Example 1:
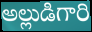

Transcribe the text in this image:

అల్లుడిగారి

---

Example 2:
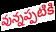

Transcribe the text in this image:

వున్నప్పటికి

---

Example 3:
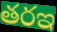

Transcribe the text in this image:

తరఇ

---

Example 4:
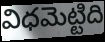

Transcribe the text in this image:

విధమెట్టిది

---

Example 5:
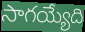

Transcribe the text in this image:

సాగయ్యేది